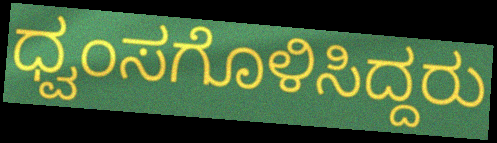
ಧ್ವಂಸಗೊಳಿಸಿದ್ದರು